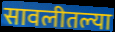
सावलीतल्या